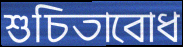
শুচিতাবোধ